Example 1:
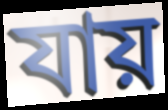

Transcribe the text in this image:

যায়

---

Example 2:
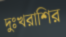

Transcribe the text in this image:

দুঃখরাশির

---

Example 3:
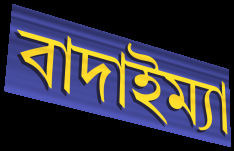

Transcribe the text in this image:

বাদাইম্যা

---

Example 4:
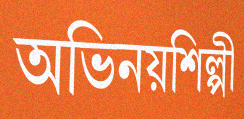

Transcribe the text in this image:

অভিনয়শিল্পী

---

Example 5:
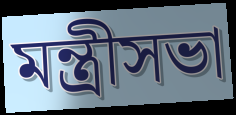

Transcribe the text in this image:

মন্ত্রীসভা